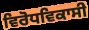
ਵਿਰੋਧਵਿਕਾਸੀ